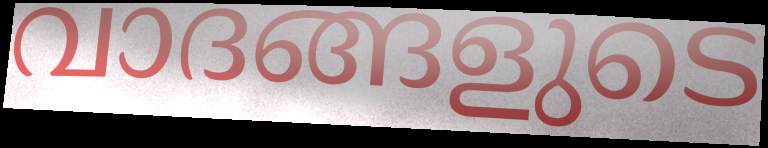
വാദങ്ങളുടെ